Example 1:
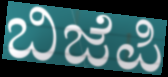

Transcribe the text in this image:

ಬಿಜೆಪಿ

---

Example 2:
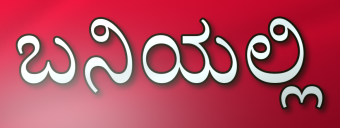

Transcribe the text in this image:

ಬನಿಯಲ್ಲಿ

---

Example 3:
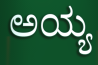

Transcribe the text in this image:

ಅಯ್ಯ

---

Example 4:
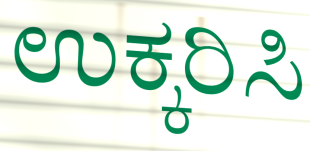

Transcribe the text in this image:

ಉಕ್ಕರಿಸಿ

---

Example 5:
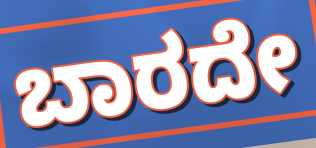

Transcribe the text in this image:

ಬಾರದೇ